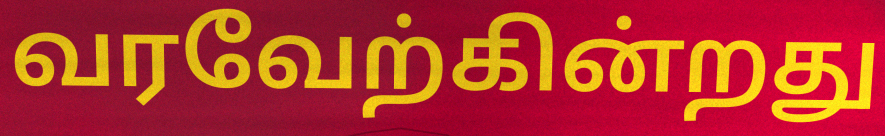
வரவேற்கின்றது